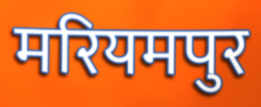
मरियमपुर